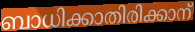
ബാധിക്കാതിരിക്കാന്